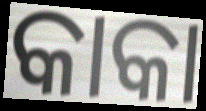
କାକା